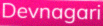
Devnagari